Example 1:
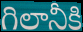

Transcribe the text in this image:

గిలానీకి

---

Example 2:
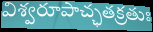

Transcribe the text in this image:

విశ్వరూపాచ్ఛతక్రతుః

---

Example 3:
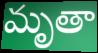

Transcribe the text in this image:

మృతా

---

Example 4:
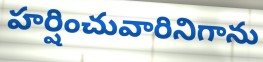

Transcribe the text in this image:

హర్షించువారినిగాను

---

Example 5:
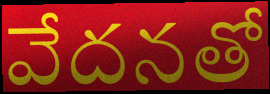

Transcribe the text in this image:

వేదనతో